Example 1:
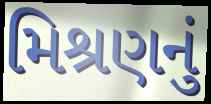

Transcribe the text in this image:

મિશ્રણનું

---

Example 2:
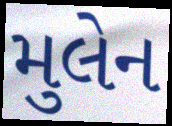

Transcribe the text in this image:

મુલેન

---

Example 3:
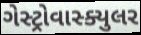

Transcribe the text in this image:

ગેસ્ટ્રોવાસ્ક્યુલર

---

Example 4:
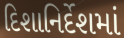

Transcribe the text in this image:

દિશાનિર્દેશમાં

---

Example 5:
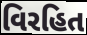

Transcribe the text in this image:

વિરહિત